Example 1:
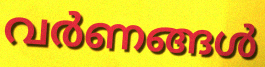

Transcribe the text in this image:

വർണങ്ങൾ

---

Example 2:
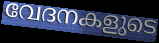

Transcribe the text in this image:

വേദനകളുടെ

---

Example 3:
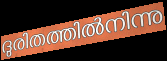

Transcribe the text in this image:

ദുരിതത്തിൽനിന്നു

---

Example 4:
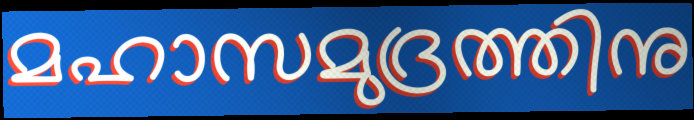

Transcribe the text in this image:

മഹാസമുദ്രത്തിനു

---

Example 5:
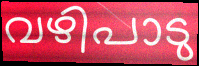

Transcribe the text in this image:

വഴിപാടു